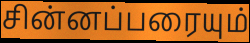
சின்னப்பரையும்